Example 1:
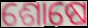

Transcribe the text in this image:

ଶୋଷେ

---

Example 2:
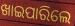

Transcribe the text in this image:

ଖାଇପାରିଲେ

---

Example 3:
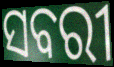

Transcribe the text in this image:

ସବରୀ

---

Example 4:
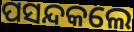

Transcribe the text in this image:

ପସନ୍ଦକଲେ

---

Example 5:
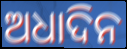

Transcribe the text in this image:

ଅଧାଦିନ